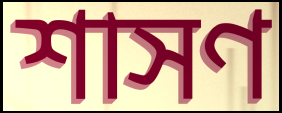
শাসণ